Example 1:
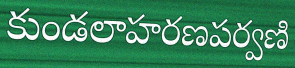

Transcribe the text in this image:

కుండలాహరణపర్వణి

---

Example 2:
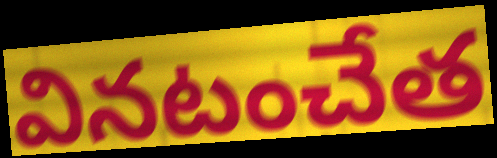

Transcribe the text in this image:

వినటంచేత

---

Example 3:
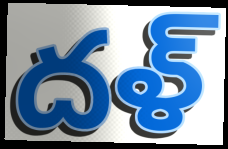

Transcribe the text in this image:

దళ్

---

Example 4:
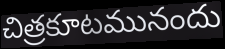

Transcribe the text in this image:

చిత్రకూటమునందు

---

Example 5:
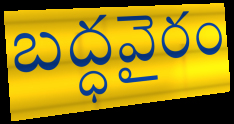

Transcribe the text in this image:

బద్ధవైరం